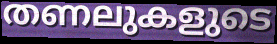
തണലുകളുടെ